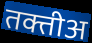
तक्तीअ